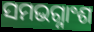
ସମଭଗ୍ନାଂଶ